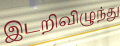
இடறிவிழுந்து